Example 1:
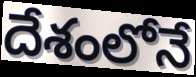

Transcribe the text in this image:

దేశంలోనే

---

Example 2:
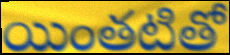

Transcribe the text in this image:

యింతటితో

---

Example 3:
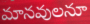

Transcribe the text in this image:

మానవులనూ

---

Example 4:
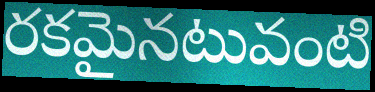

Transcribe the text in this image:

రకమైనటువంటి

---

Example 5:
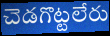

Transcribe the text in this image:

చెడగొట్టలేరు